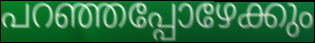
പറഞ്ഞപ്പോഴേക്കും